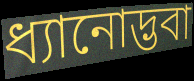
ধ্যানোদ্ভবা